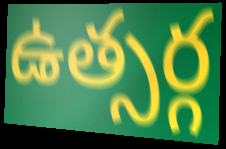
ఉత్సర్గ